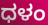
ಧಳಂ